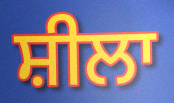
ਸ਼ੀਲਾ